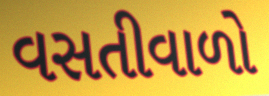
વસતીવાળો